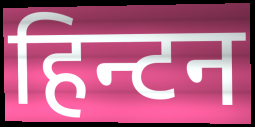
हिन्टन